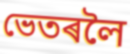
ভেতৰলৈ